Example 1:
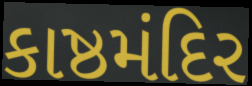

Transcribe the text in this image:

કાષ્ઠમંદિર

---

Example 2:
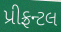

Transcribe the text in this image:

પ્રીફ્રન્ટલ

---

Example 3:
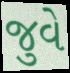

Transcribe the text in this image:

જુવે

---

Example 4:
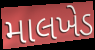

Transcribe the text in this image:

માલખેડ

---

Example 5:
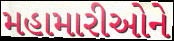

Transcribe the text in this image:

મહામારીઓને